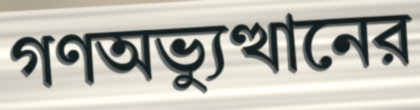
গণঅভ্যুত্থানের